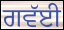
ਗਵੱਈ